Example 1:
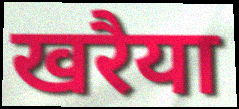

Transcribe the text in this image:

खरैया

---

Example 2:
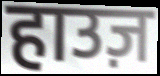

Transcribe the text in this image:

हाउज़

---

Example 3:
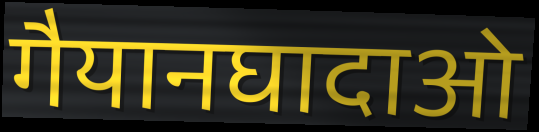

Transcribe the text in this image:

गैयानघादाओ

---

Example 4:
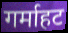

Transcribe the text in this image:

गर्माहट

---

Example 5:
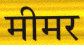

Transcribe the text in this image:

मीमर